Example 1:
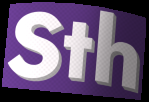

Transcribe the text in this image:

Sth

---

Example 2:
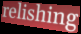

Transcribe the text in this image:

relishing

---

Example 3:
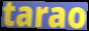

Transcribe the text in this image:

tarao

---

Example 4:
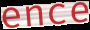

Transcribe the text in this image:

ence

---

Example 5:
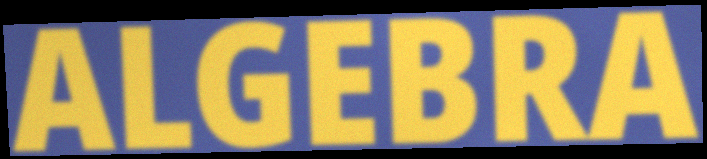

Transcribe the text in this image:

ALGEBRA